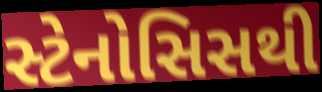
સ્ટેનોસિસથી